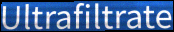
Ultrafiltrate